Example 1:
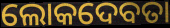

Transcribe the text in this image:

ଲୋକଦେବତା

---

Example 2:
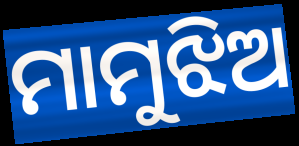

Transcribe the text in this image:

ମାମୁଝିଅ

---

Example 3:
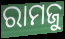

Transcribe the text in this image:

ରାମଜୁ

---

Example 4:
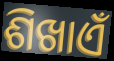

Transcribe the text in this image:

ଶିଖାଏଁ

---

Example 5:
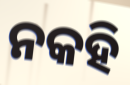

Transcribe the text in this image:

ନକହି